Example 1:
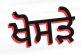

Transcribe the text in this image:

ਖੋਸੜੇ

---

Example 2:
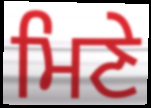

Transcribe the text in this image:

ਮਿਣੇ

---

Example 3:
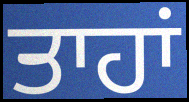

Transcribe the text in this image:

ਤਾਹਾਂ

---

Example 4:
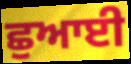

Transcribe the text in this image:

ਛੁਆਈ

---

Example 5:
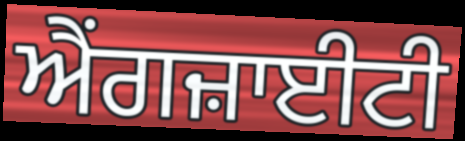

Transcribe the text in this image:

ਐਂਗਜ਼ਾਈਟੀ